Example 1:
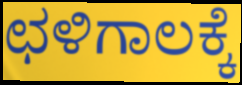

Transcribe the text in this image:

ಛಳಿಗಾಲಕ್ಕೆ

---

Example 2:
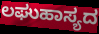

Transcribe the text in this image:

ಲಘುಹಾಸ್ಯದ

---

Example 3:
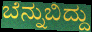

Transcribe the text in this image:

ಬೆನ್ನುಬಿದ್ದು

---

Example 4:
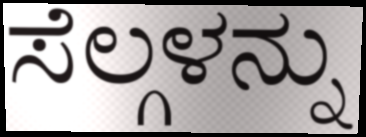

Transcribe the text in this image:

ಸೆಲ್ಗಳನ್ನು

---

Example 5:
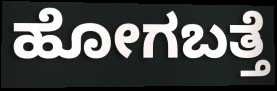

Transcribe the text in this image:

ಹೋಗಬತ್ತೆ